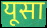
यूसा